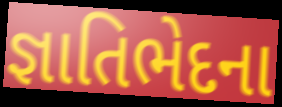
જ્ઞાતિભેદના